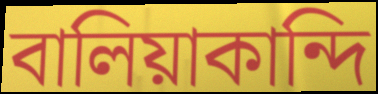
বালিয়াকান্দি